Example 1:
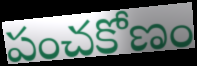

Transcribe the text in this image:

పంచకోణం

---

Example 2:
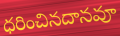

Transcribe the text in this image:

ధరించినదానవూ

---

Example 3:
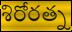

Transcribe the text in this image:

శిరోరత్న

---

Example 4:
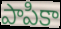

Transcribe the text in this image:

పాపికా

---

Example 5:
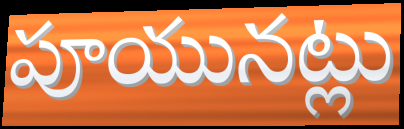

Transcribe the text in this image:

పూయునట్లు